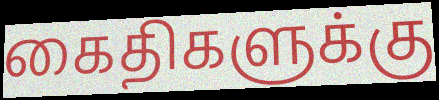
கைதிகளுக்கு